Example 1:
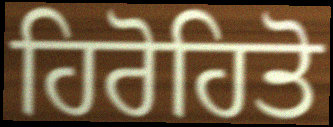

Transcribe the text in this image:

ਹਿਰੋਹਿਤੋ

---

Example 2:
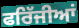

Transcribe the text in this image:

ਫਰਿੱਜੀਆਂ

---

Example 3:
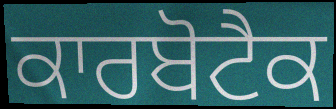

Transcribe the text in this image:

ਕਾਰਬੋਟੈਕ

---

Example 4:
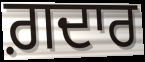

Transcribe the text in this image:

ਗ਼ਦਾਰ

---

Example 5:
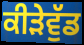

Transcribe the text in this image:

ਕੀੜੇਵੁੱਡ